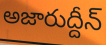
అజారుద్దీన్